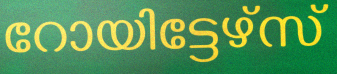
റോയിട്ടേഴ്സ്